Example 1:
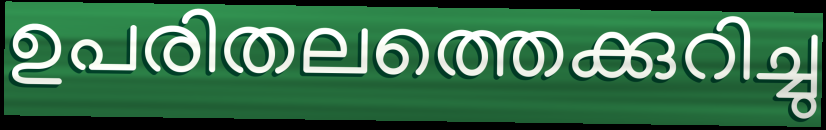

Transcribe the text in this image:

ഉപരിതലത്തെക്കുറിച്ചു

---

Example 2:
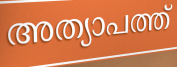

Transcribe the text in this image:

അത്യാപത്ത്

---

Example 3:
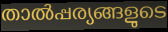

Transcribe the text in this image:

താൽപ്പര്യങ്ങളുടെ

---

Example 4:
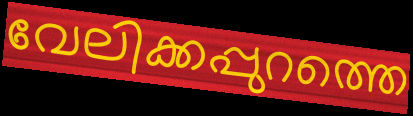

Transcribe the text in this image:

വേലിക്കപ്പുറത്തെ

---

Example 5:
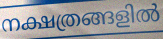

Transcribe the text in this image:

നക്ഷത്രങ്ങളിൽ